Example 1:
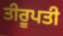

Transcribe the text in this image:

ਤੀਰੂਪਤੀ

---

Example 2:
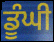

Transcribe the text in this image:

ਡੂੰਘੀ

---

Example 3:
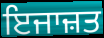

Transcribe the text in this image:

ਇਜਾਜ਼ਤ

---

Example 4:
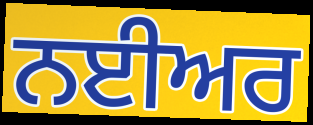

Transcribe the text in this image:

ਨਈਅਰ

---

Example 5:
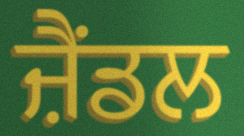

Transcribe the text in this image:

ਜ਼ੈਂਡਲ